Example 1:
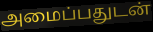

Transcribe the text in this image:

அமைப்பதுடன்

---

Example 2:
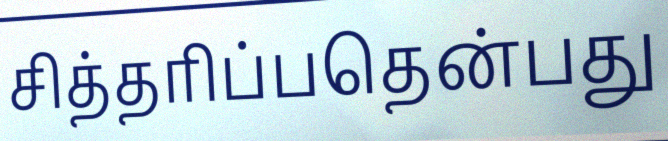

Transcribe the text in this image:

சித்தரிப்பதென்பது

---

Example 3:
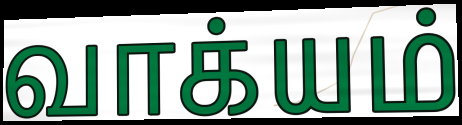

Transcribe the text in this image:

வாக்யம்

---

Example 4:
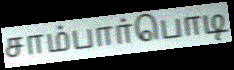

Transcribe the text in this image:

சாம்பார்பொடி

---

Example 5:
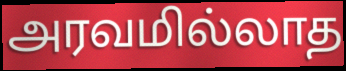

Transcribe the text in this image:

அரவமில்லாத